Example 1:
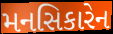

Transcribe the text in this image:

મનસિકારેન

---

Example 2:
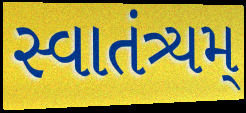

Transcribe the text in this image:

સ્વાતંત્ર્યમ્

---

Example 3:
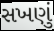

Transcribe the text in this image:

સખણું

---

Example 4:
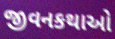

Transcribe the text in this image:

જીવનકથાઓ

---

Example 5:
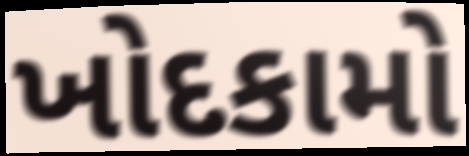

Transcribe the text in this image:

ખોદકામો